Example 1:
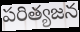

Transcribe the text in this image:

పరిత్యజన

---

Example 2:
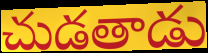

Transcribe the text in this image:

చుడతాడు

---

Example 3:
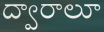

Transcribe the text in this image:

ద్వారాలూ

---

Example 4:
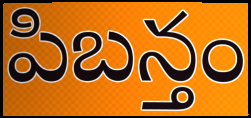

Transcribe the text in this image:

పిబన్తం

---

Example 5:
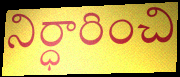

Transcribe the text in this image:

నిర్ధారించి